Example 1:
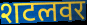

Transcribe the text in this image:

शटलवर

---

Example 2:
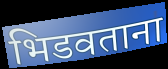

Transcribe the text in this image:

भिडवताना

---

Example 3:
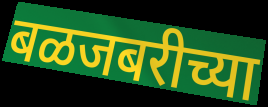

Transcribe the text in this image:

बळजबरीच्या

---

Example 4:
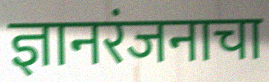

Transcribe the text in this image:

ज्ञानरंजनाचा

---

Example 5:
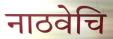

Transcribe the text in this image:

नाठवेचि